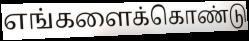
எங்களைக்கொண்டு